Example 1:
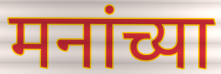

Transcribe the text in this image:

मनांच्या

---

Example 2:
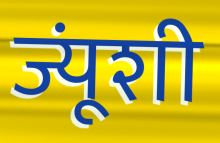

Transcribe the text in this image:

ज्यूंशी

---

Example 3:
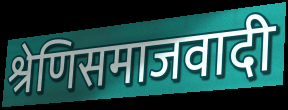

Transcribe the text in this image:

श्रेणिसमाजवादी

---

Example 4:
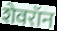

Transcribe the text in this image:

शेवरॉन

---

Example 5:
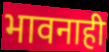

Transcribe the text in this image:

भावनाही